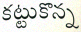
కట్టుకొన్న